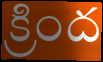
క్రింద